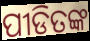
ପୀଡିତଙ୍କ